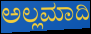
ಅಲ್ಲಮಾದಿ